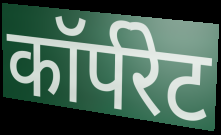
कॉर्परेट